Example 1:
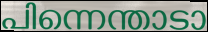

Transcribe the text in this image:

പിന്നെന്താടാ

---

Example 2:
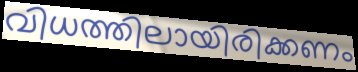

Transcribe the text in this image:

വിധത്തിലായിരിക്കണം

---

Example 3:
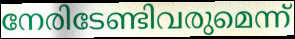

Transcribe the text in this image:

നേരിടേണ്ടിവരുമെന്ന്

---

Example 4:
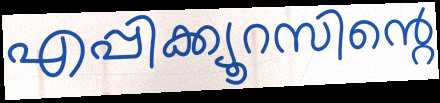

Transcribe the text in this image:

എപ്പിക്ക്യൂറസിന്റെ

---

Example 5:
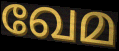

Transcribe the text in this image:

ഖേമ